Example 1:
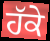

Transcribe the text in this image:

ਹੱਕੇ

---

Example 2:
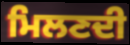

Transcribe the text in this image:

ਮਿਲਣਦੀ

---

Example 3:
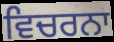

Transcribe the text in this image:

ਵਿਚਰਨਾ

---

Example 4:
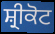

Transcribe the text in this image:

ਸ਼੍ਰੀਕੋਟ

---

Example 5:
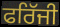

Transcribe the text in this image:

ਫਰਿੱਜੀ